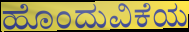
ಹೊಂದುವಿಕೆಯ